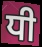
ਧੀ